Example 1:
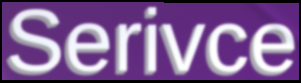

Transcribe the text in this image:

Serivce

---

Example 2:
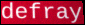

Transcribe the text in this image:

defray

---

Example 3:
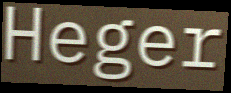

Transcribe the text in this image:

Heger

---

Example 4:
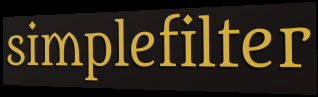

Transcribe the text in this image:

simplefilter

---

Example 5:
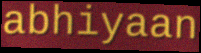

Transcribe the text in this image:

abhiyaan